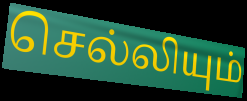
செல்லியும்